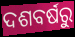
ଦଶବର୍ଷରୁ